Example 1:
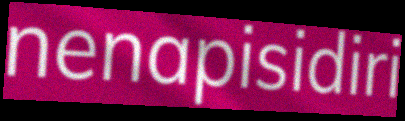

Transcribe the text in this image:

nenapisidiri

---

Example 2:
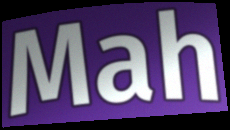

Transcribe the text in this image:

Mah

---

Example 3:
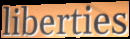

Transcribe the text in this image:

liberties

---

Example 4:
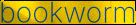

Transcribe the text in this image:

bookworm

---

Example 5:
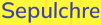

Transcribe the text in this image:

Sepulchre